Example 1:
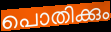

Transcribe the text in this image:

പൊതിക്കും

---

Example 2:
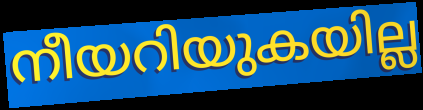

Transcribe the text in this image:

നീയറിയുകയില്ല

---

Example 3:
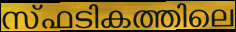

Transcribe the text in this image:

സ്ഫടികത്തിലെ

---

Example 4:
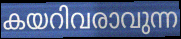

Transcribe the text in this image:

കയറിവരാവുന്ന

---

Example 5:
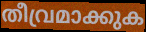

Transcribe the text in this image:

തീവ്രമാക്കുക